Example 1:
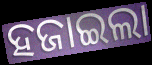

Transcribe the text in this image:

ହଜାଇଲା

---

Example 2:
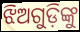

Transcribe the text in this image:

ଝିଅଗୁଡ଼ିଙ୍କୁ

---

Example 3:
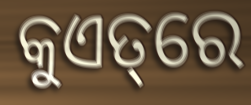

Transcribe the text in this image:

କୁଏତ୍‌ରେ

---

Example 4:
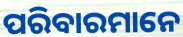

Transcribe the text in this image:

ପରିବାରମାନେ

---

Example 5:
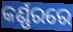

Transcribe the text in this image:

କର୍ଣ୍ଣରରେ